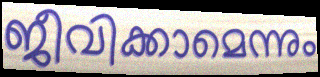
ജീവിക്കാമെന്നും